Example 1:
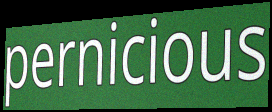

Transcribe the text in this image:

pernicious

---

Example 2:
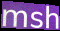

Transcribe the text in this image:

msh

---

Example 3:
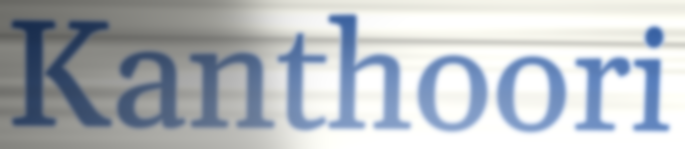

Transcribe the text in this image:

Kanthoori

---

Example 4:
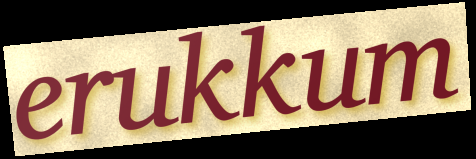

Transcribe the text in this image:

erukkum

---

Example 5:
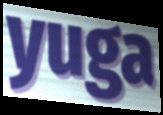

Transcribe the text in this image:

yuga